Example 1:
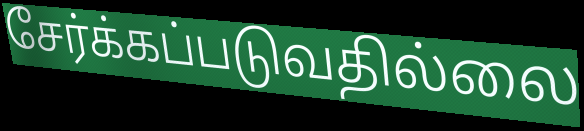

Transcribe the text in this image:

சேர்க்கப்படுவதில்லை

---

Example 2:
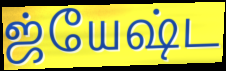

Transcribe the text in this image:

ஜ்யேஷ்ட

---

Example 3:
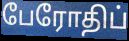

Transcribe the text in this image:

பேரோதிப்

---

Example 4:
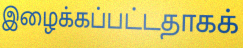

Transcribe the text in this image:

இழைக்கப்பட்டதாகக்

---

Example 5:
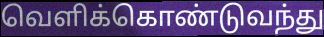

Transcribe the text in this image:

வெளிக்கொண்டுவந்து